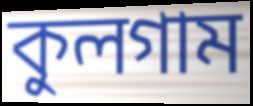
কুলগাম